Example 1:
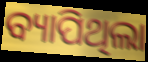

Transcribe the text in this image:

ବ୍ୟାପିଥିଲା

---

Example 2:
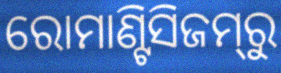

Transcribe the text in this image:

ରୋମାଣ୍ଟିସିଜମ୍‌ରୁ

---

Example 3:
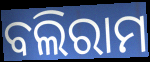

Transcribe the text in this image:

ବଲିରାମ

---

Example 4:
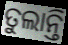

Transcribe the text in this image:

ତୁଲାନ୍ତି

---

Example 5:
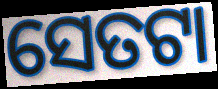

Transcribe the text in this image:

ସେତଟା